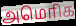
அமெரிக